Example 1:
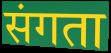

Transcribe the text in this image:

संगता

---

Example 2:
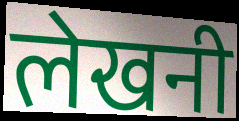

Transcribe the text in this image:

लेखनी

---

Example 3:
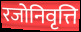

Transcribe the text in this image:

रजोनिवृत्ति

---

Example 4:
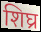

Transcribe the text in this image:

शिघ्र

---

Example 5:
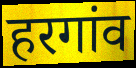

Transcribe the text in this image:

हरगांव